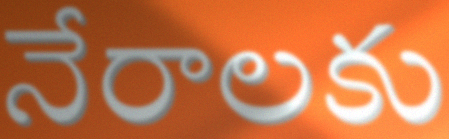
నేరాలకు